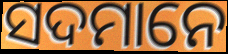
ସଦମାନେ